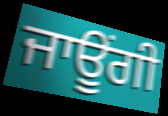
ਜਾਊਂਗੀ